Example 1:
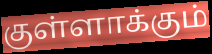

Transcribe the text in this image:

குள்ளாக்கும்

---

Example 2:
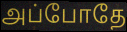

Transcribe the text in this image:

அப்போதே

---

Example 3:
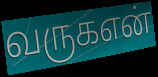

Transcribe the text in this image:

வருகஎன்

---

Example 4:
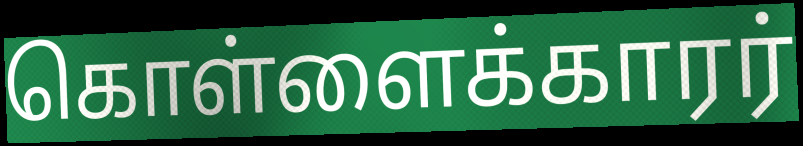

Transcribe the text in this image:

கொள்ளைக்காரர்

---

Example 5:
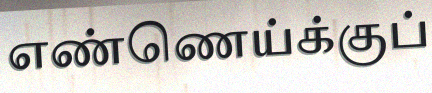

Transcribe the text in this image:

எண்ணெய்க்குப்